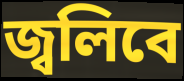
জ্বলিবে